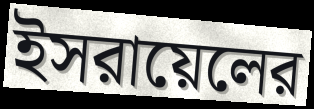
ইসরায়েলের